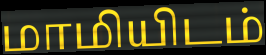
மாமியிடம்